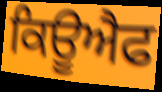
ਕਿਊਐਫ